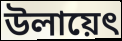
উলায়েৎ